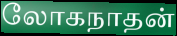
லோகநாதன்